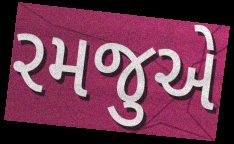
રમજુએ